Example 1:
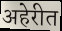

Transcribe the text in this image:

अहेरीत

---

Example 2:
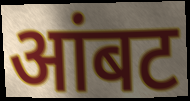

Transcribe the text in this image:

आंबट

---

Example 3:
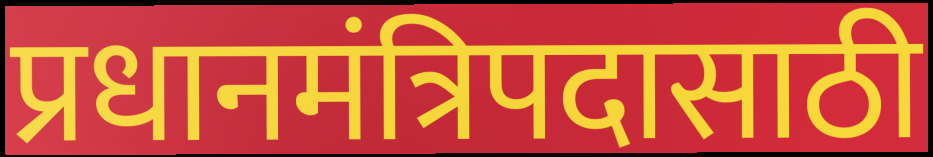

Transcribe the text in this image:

प्रधानमंत्रिपदासाठी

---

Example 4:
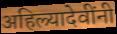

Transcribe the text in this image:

अहिल्यादेवींनी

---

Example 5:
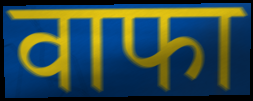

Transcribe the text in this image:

वाफा